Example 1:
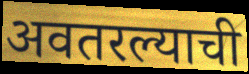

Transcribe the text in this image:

अवतरल्याची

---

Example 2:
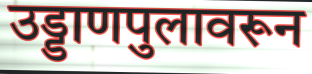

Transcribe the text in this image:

उड्डाणपुलावरून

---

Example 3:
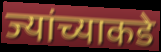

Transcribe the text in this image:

ज्यांच्याकडे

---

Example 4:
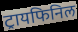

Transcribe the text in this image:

ट्रायफिनिल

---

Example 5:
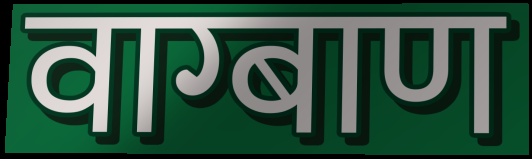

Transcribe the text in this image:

वाग्बाण